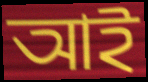
আই